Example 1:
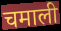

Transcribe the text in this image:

चमाली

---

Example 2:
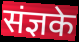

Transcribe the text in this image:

संज्ञके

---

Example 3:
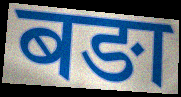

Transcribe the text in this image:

बङा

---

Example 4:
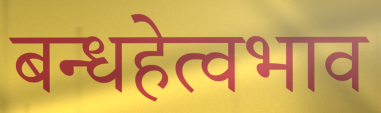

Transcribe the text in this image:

बन्धहेत्वभाव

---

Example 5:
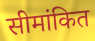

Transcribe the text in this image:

सीमांकित